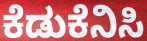
ಕೆಡುಕೆನಿಸಿ